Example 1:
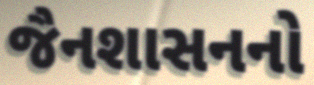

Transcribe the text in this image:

જૈનશાસનનો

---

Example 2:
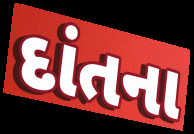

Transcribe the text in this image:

દાંતના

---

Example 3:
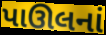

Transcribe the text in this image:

પાઊલનાં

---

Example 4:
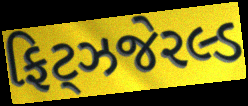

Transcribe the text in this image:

ફિટ્ઝજેરલ્ડ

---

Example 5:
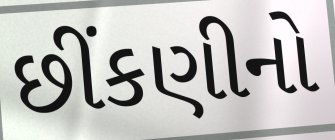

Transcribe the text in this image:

છીંકણીનો